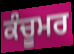
ਕੰਚੂਮਰ